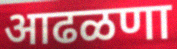
आढळणा